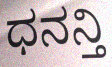
ಧನನ್ತಿ